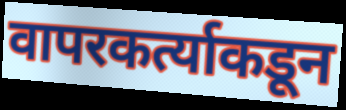
वापरकर्त्याकडून